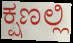
ಕ್ಷಣಲ್ಲಿ